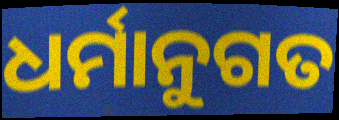
ଧର୍ମାନୁଗତ